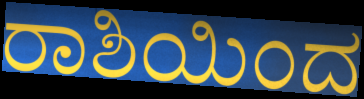
ರಾಶಿಯಿಂದ